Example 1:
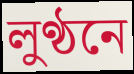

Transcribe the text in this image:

লুণ্ঠনে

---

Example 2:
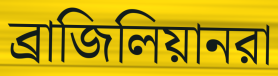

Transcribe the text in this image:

ব্রাজিলিয়ানরা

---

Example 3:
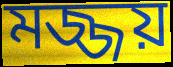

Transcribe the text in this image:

মজ্জয়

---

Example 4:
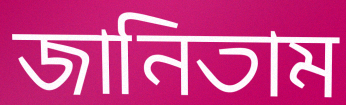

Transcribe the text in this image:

জানিতাম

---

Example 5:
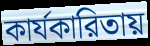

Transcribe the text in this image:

কার্যকারিতায়